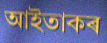
আইতাকৰ